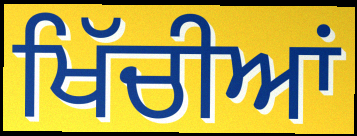
ਖਿੱਚੀਆਂ